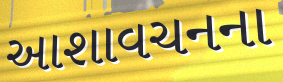
આશાવચનના